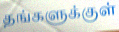
தங்களுக்குள்